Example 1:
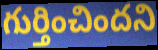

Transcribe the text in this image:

గుర్తించిందని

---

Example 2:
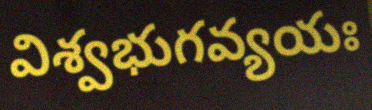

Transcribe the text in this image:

విశ్వభుగవ్యయః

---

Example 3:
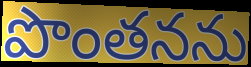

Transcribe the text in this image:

పొంతనను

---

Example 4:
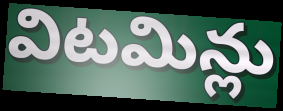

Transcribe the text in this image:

విటమిన్లు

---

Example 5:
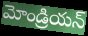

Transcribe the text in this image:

మోండ్రియన్